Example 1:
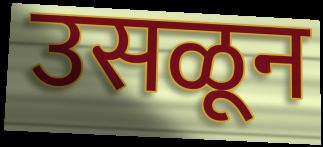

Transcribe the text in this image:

उसळून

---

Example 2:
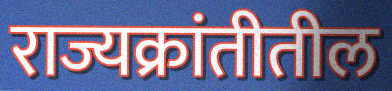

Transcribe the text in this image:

राज्यक्रांतीतील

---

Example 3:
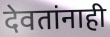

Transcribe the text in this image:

देवतांनाही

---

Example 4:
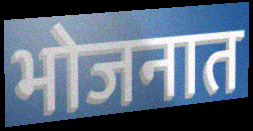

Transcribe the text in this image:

भोजनात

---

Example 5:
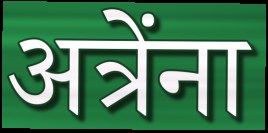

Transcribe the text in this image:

अत्रेंना